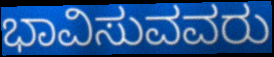
ಭಾವಿಸುವವರು